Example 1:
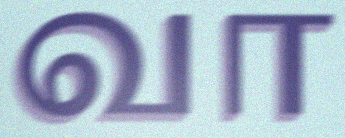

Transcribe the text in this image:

வா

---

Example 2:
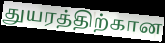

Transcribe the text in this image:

துயரத்திற்கான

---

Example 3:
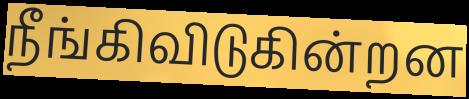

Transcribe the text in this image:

நீங்கிவிடுகின்றன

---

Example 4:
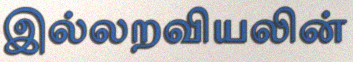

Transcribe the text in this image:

இல்லறவியலின்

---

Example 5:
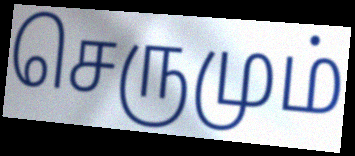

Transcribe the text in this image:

செருமும்